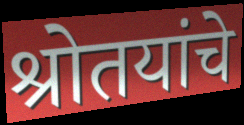
श्रोतयांचे